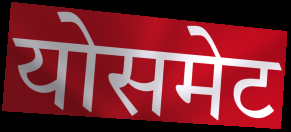
योसमेट